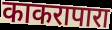
काकरापारा